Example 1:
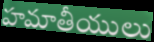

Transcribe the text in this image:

హమాతీయులు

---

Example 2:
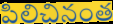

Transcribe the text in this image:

పిలిచినంత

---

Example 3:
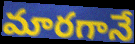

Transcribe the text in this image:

మారగానే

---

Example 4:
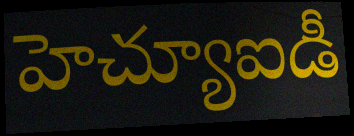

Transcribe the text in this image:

హెచ్యూఐడీ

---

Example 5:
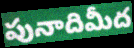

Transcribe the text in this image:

పునాదిమీద